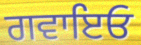
ਗਵਾਇਓ